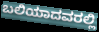
ಬಲಿಯಾದವರಲ್ಲಿ